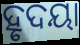
ହୃଦୟା